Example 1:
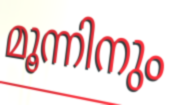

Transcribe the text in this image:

മൂന്നിനും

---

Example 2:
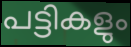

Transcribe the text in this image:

പട്ടികളും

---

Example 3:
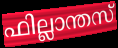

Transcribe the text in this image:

ഫില്ലാന്തസ്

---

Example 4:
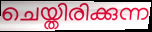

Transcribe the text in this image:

ചെയ്തിരിക്കുന്ന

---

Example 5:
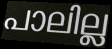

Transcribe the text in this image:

പാലില്ല